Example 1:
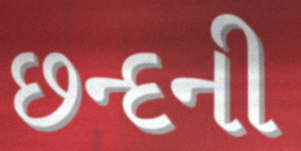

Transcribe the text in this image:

છન્દની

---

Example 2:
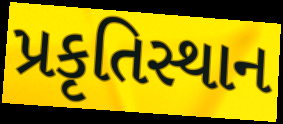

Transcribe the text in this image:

પ્રકૃતિસ્થાન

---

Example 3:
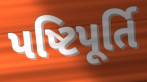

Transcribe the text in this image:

પષ્ટિપૂર્તિ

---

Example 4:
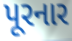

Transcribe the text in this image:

પૂરનાર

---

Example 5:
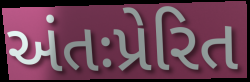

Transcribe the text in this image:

અંતઃપ્રેરિત